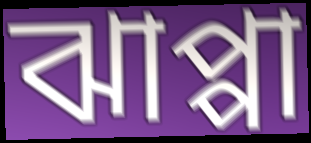
ঝাপ্পা